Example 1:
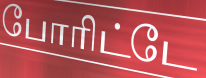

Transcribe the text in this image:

போரிட்டே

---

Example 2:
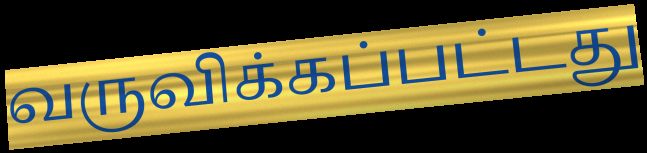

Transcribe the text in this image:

வருவிக்கப்பட்டது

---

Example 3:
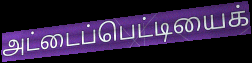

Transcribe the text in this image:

அட்டைப்பெட்டியைக்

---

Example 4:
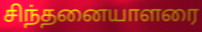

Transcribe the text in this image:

சிந்தனையாளரை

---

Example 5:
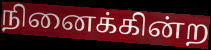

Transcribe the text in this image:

நினைக்கின்ற